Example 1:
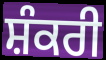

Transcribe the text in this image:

ਸ਼ੰਕਰੀ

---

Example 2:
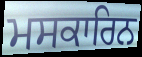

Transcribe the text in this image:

ਮਸਕਾਰਿਨ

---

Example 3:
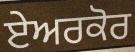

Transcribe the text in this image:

ਏਅਰਕੋਰ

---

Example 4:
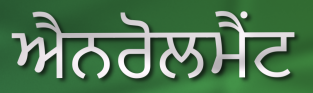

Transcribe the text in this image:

ਐਨਰੋਲਮੈਂਟ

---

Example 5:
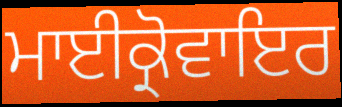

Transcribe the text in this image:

ਮਾਈਕ੍ਰੋਵਾਇਰ